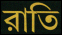
রাতি